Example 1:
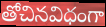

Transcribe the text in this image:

తోచినవిధంగా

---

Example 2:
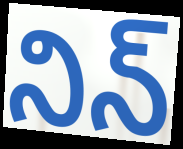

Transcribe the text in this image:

నిన్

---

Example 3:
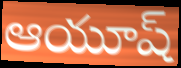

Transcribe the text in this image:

ఆయూష్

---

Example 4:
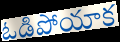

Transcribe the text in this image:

ఓడిపోయాక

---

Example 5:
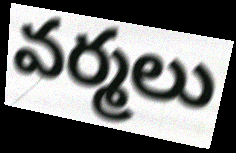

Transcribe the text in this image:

వర్మలు